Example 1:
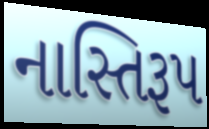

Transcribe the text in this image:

નાસ્તિરૂપ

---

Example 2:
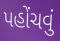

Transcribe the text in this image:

પહોંચવું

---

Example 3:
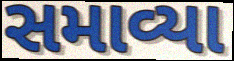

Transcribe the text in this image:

સમાવ્યા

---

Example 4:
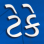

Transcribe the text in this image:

ટેકે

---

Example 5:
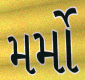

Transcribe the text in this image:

મર્મો